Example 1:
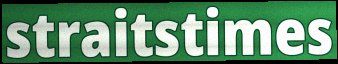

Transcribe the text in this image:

straitstimes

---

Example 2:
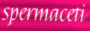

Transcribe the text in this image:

spermaceti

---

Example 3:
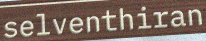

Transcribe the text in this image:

selventhiran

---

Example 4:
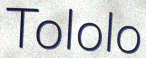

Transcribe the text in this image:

Tololo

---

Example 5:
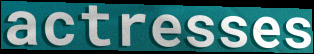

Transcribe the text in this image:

actresses